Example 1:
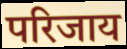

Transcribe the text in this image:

परिजाय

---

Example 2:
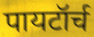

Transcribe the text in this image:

पायटॉर्च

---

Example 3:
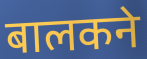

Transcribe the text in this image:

बालकने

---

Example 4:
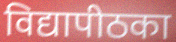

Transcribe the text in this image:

विद्यापीठका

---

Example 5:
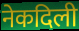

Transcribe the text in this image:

नेकदिली